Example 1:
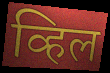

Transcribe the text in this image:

व्हिल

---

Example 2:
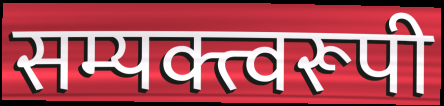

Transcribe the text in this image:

सम्यक्त्वरूपी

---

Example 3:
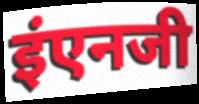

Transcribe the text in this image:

इंएनजी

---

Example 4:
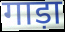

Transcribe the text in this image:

गाड़ा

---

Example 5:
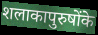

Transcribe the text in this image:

शलाकापुरुषोंके